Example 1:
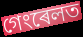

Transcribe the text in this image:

গেংৰেলত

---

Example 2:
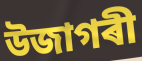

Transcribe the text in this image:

উজাগৰী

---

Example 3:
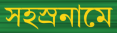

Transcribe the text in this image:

সহস্ৰনামে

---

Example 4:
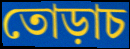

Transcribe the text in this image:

তোড়াচ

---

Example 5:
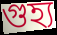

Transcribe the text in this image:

গুহ্য